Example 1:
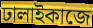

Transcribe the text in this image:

ঢালাইকাজে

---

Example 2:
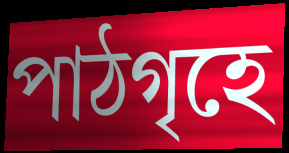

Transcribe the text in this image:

পাঠগৃহে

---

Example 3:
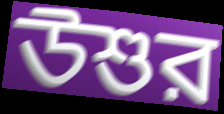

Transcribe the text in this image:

উশুর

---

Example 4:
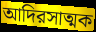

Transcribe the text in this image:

আদিরসাত্মক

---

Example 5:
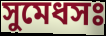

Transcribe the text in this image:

সুমেধসঃ